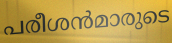
പരീശൻമാരുടെ